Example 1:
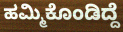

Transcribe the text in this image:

ಹಮ್ಮಿಕೊಂಡಿದ್ದೆ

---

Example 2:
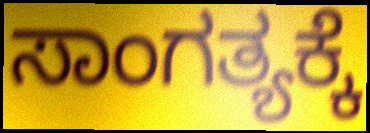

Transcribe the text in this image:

ಸಾಂಗತ್ಯಕ್ಕೆ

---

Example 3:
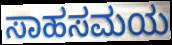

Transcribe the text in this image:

ಸಾಹಸಮಯ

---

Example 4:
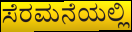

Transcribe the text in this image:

ಸೆರಮನೆಯಲ್ಲಿ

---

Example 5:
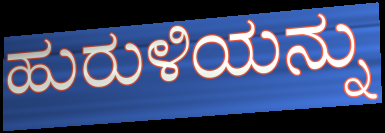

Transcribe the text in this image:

ಹುರುಳಿಯನ್ನು